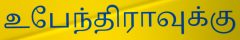
உபேந்திராவுக்கு